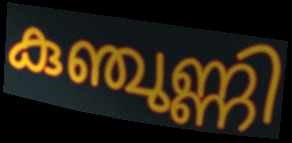
കുഞ്ചുണ്ണി